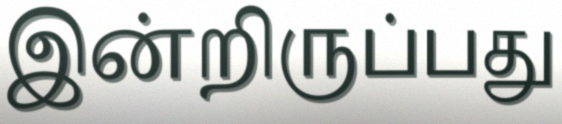
இன்றிருப்பது